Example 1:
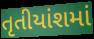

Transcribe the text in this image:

તૃતીયાંશમાં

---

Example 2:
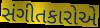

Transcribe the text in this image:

સંગીતકારોએ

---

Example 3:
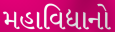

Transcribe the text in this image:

મહાવિદ્યાનો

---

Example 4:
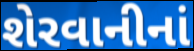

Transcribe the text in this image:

શેરવાનીનાં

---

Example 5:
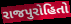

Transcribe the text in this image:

રાજપુરોહિતો